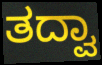
ತದ್ವಾ